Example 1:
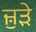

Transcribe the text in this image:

ਜ਼ੁੜੇ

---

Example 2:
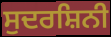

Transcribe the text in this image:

ਸੁਦਰਸ਼ਿਨੀ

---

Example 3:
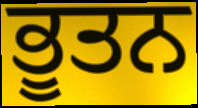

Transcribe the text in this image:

ਭੂਤਨ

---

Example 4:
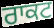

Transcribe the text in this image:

ਰਾਕਟ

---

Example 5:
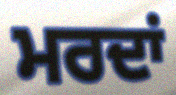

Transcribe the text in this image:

ਮਰਦਾਂ